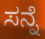
ಸನ್ನೆ